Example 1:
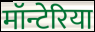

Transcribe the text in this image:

मॉन्टेरिया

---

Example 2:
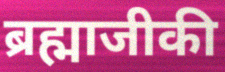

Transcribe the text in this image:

ब्रह्माजीकी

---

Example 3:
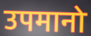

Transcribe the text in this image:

उपमानो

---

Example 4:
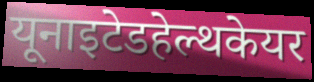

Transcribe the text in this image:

यूनाइटेडहेल्थकेयर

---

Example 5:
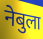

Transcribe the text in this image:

नेबुला